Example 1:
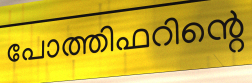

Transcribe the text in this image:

പോത്തിഫറിന്റെ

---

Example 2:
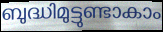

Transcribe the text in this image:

ബുദ്ധിമുട്ടുണ്ടാകാം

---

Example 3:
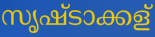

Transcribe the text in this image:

സൃഷ്ടാക്കള്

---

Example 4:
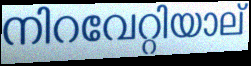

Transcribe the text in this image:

നിറവേറ്റിയാല്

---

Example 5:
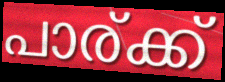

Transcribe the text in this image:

പാര്ക്ക്